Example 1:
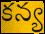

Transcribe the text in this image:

కన్య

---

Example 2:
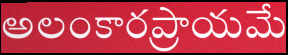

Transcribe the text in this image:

అలంకారప్రాయమే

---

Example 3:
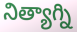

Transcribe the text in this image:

నిత్యాగ్ని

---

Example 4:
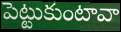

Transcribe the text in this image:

పెట్టుకుంటావా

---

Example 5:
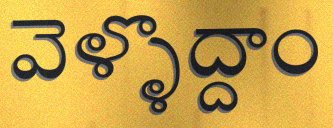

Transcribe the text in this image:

వెళ్ళొద్దాం